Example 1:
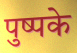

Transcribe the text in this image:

पुष्पके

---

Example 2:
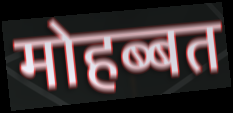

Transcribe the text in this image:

मोहब्बत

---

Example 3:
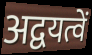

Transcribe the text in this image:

अद्वयत्वें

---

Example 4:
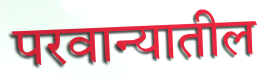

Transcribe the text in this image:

परवान्यातील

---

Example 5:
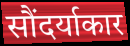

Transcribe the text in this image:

सौंदर्याकार